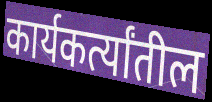
कार्यकर्त्यांतील